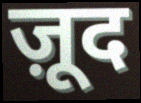
ज़ूद